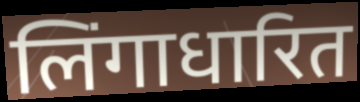
लिंगाधारित